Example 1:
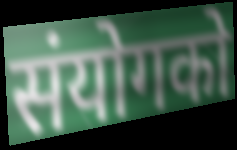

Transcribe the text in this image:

संयोगको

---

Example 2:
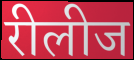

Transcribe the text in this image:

रीलीज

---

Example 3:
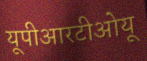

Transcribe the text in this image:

यूपीआरटीओयू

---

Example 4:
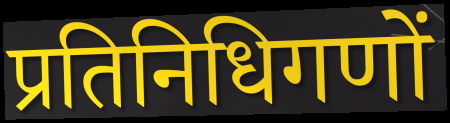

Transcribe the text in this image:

प्रतिनिधिगणों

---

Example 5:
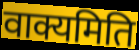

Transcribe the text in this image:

वाक्यमिति